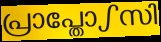
പ്രാപ്തോഽസി